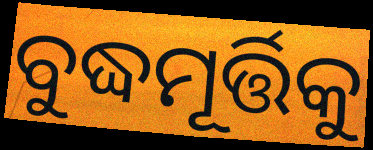
ବୁଦ୍ଧମୂର୍ତ୍ତିକୁ